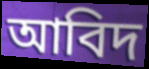
আবিদ